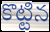
కొట్టిన